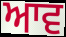
ਆਵ